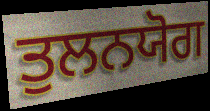
ਤੁਲਨਯੋਗ